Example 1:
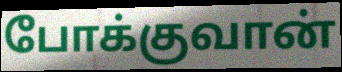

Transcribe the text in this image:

போக்குவான்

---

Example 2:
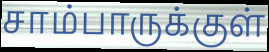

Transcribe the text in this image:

சாம்பாருக்குள்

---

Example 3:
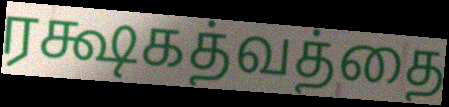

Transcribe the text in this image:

ரக்ஷகத்வத்தை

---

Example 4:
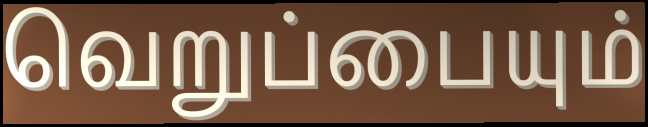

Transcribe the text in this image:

வெறுப்பையும்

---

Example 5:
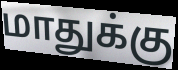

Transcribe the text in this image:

மாதுக்கு